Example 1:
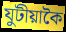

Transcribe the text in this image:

যুটীয়াকৈ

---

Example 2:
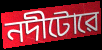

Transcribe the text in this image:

নদীটোৱে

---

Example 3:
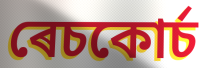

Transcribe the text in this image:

ৰেচকোৰ্চ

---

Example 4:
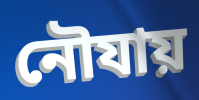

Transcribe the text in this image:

নৌযায়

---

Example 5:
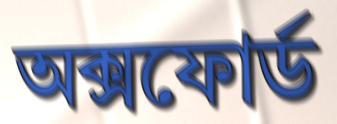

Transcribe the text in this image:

অক্সফোৰ্ড